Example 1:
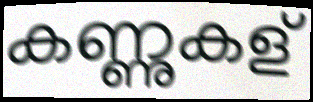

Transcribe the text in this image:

കണ്ണുകള്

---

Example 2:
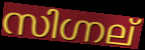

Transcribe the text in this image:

സിഗ്നല്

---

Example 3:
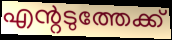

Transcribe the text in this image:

എന്റടുത്തേക്ക്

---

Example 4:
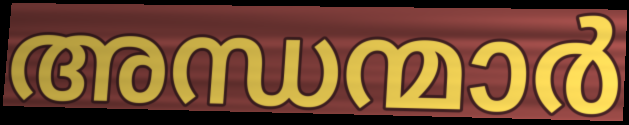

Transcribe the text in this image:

അന്ധന്മാർ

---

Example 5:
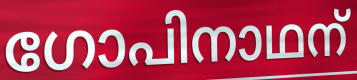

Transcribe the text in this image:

ഗോപിനാഥന്